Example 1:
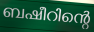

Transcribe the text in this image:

ബഷീറിന്റെ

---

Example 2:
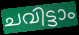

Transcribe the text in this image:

ചവിട്ടാം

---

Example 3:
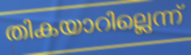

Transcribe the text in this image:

തികയാറില്ലെന്ന്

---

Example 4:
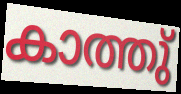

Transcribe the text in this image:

കാത്തു്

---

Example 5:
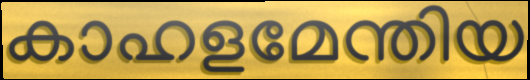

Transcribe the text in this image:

കാഹളമേന്തിയ